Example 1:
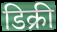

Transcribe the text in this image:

डिक्री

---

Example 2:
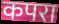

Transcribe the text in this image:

कपरा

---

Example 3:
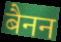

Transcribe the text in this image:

बैनन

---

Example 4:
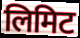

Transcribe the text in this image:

लिमिट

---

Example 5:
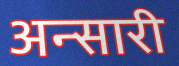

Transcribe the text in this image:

अन्सारी